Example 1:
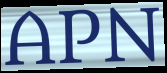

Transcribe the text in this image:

APN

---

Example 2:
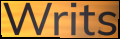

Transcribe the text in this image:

Writs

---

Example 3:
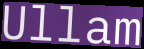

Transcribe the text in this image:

Ullam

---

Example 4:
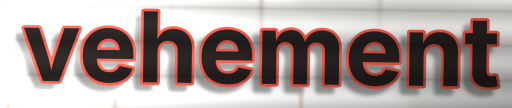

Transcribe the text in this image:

vehement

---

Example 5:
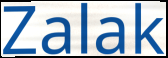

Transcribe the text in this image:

Zalak